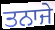
ਤਨਾਜੇ